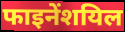
फाइनेंशयिल